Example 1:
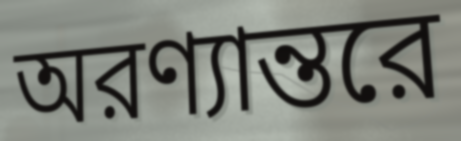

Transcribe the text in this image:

অরণ্যান্তরে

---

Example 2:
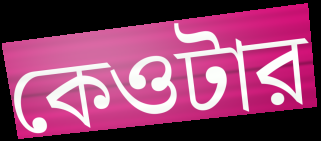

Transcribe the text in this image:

কেওটার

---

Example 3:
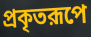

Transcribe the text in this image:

প্রকৃতরূপে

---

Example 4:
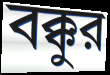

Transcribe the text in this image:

বক্কুর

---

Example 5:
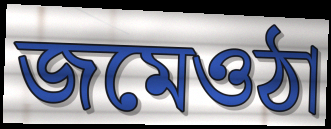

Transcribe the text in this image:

জমেওঠা